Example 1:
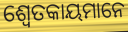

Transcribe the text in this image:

ଶ୍ୱେତକାୟମାନେ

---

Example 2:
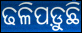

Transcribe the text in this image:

ଢଳିପଡ଼ୁଛି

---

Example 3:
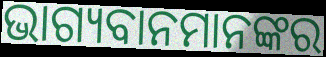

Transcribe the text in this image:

ଭାଗ୍ୟବାନମାନଙ୍କର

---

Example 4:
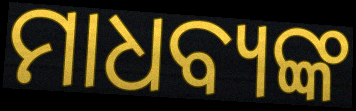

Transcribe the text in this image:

ମାଧବ୍ୟଙ୍କ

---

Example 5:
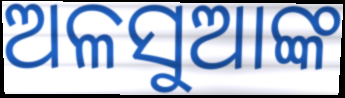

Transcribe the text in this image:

ଅଳସୁଆଙ୍କ